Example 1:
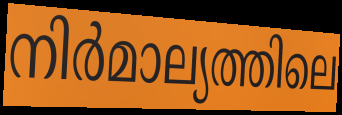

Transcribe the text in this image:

നിർമാല്യത്തിലെ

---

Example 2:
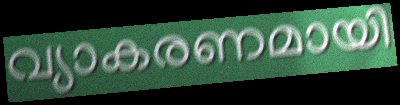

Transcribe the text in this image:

വ്യാകരണമായി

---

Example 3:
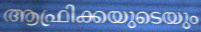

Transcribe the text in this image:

ആഫ്രിക്കയുടെയും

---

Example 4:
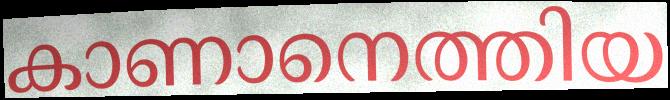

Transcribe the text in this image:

കാണാനെത്തിയ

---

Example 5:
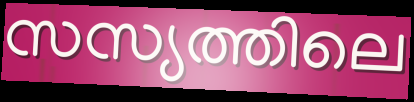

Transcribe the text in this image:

സസ്യത്തിലെ